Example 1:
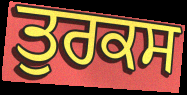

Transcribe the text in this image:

ਤੁਰਕਸ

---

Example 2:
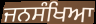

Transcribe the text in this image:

ਜਨਸੰਖਿਆ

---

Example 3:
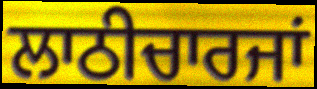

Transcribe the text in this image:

ਲਾਠੀਚਾਰਜਾਂ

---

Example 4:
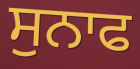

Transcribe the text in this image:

ਸੁਨਾਫ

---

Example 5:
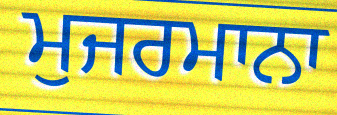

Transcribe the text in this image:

ਮੁਜਰਮਾਨਾ